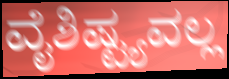
ವೈಶಿಷ್ಟ್ಯವಲ್ಲ